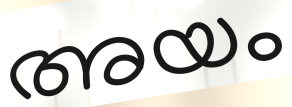
അയം